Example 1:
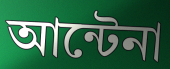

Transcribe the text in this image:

আন্টেনা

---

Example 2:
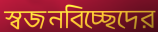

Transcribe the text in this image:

স্বজনবিচ্ছেদের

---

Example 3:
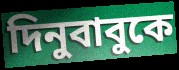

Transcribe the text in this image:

দিনুবাবুকে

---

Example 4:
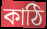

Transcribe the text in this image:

কাঠি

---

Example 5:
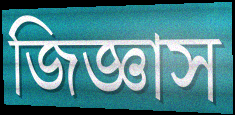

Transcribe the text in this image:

জিজ্ঞাস